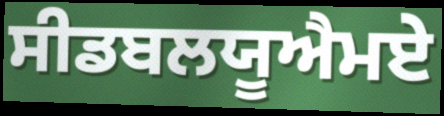
ਸੀਡਬਲਯੂਐਮਏ